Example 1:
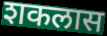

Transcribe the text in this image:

शकलास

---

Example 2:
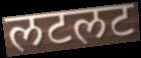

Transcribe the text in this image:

लटलट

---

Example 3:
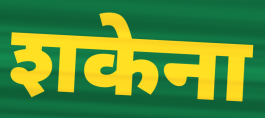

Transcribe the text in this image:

शकेना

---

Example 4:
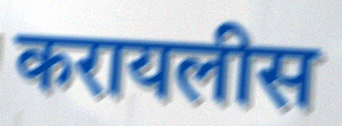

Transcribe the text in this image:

करायलीस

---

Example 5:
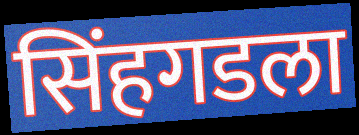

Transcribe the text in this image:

सिंहगडला